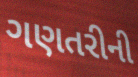
ગણતરીની